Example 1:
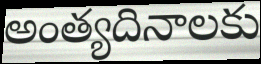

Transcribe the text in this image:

అంత్యదినాలకు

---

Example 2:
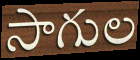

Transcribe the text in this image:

సాగుల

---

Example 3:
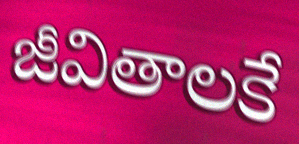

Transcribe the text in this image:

జీవితాలకే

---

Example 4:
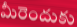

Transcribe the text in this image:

మీరెందుకు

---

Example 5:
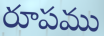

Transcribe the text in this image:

రూపము